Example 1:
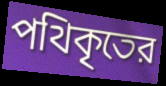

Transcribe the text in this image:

পথিকৃতের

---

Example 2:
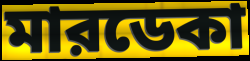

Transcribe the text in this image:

মারডেকা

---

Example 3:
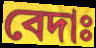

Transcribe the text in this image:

বেদাঃ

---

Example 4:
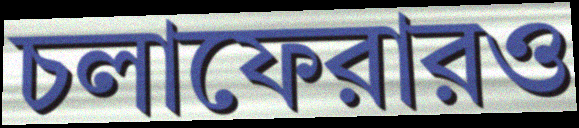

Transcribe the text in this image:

চলাফেরারও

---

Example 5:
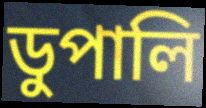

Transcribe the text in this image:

ডুপালি